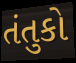
તંતુકો